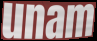
unam